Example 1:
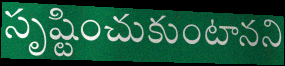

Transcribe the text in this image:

సృష్టించుకుంటానని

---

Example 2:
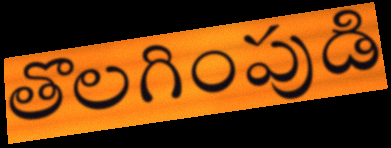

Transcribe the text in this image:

తొలగింపుడి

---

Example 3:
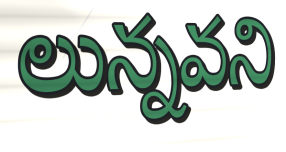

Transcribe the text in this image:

లున్నవని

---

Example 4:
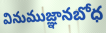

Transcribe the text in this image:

వినుముజ్ఞానబోధ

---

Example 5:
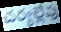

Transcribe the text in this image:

చర్యల్లేవు